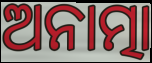
ଅନାତ୍ମା